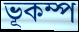
ভূকম্প